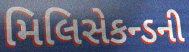
મિલિસેકન્ડની